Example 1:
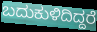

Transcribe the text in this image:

ಬದುಕುಳಿದಿದ್ದರೆ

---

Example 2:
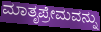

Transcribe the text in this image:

ಮಾತೃಪ್ರೇಮವನ್ನು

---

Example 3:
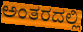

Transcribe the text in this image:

ಅಂತರದಲ್ಲಿ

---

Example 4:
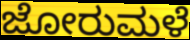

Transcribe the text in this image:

ಜೋರುಮಳೆ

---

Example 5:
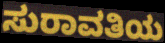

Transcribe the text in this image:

ಸುರಾವತಿಯ